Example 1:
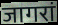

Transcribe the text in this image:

जागरां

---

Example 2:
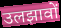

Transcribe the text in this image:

उलझावों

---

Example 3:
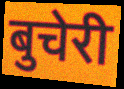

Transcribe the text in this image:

बुचेरी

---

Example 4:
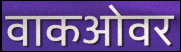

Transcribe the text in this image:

वाकओवर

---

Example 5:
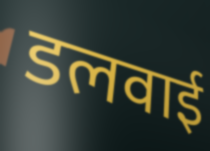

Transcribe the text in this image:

डलवाई